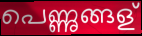
പെണ്ണുങ്ങള്